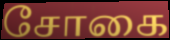
சோகை